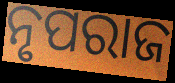
ନୃପରାଜ